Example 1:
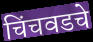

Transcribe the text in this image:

चिंचवडचे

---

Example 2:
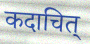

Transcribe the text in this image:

कदाचित्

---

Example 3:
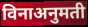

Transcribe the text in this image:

विनाअनुमती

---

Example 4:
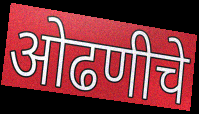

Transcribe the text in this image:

ओढणीचे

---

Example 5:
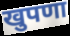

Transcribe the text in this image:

खुपणा